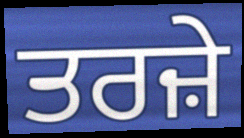
ਤਰਜ਼ੇ